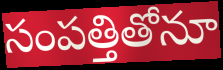
సంపత్తితోనూ